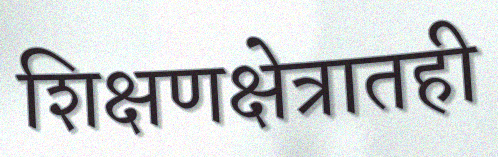
शिक्षणक्षेत्रातही